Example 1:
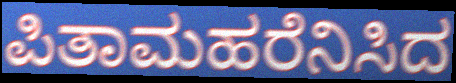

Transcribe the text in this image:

ಪಿತಾಮಹರೆನಿಸಿದ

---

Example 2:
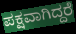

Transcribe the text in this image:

ಪಕ್ಷವಾಗಿದ್ದರೆ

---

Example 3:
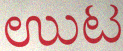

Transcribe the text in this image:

ಉುಟ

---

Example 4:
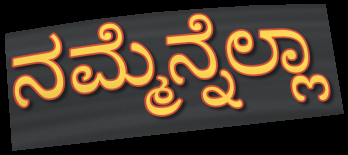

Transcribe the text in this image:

ನಮ್ಮೆನ್ನೆಲ್ಲಾ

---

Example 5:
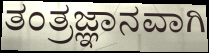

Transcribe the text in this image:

ತಂತ್ರಜ್ಞಾನವಾಗಿ